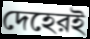
দেহেরই